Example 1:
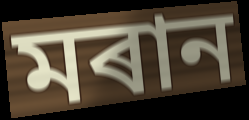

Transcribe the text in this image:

মৰান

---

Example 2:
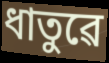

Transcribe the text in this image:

ধাতুৱে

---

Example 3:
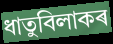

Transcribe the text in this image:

ধাতুবিলাকৰ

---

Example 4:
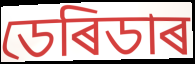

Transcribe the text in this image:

ডেৰিডাৰ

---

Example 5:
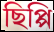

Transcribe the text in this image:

ছিপ্পি